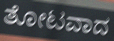
ತೋಟವಾದ